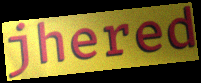
jhered